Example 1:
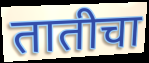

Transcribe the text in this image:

तातीचा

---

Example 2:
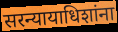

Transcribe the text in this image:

सरन्यायाधिशांना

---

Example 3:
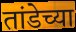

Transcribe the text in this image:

तांडेच्या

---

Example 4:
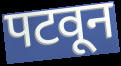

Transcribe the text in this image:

पटवून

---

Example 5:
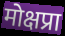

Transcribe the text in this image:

मोक्षप्रा